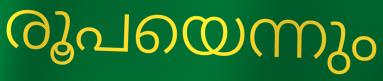
രൂപയെന്നും